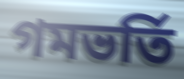
গমভর্তি